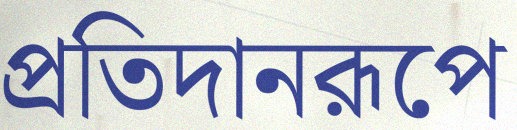
প্রতিদানরূপে